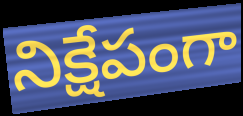
నిక్షేపంగా